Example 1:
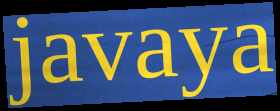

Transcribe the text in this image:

javaya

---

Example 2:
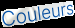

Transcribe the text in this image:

Couleurs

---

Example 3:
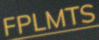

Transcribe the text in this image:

FPLMTS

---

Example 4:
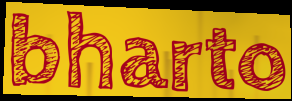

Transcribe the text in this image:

bharto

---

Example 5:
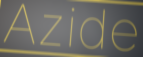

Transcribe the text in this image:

Azide